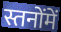
स्तनोंमें